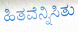
ಹಿತವೆನ್ನಿಸಿತು